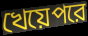
খেয়েপরে